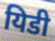
यिडी